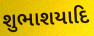
શુભાશયાદિ